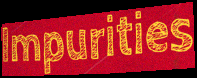
Impurities